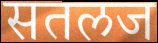
सतलज